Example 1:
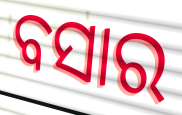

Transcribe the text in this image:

ବସାର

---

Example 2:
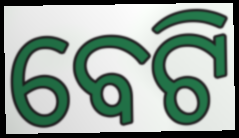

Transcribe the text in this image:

ବେଟି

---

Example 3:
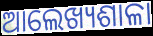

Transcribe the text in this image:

ଆଲେଖ୍ୟଶାଳା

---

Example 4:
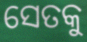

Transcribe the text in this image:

ସେତକୁ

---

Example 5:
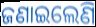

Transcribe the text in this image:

ଜଣାଇଲେଣି